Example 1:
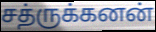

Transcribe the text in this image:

சத்ருக்கனன்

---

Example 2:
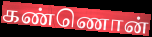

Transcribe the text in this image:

கண்ணொன்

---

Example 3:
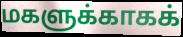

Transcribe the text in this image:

மகளுக்காகக்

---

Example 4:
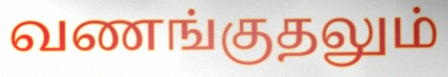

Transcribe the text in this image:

வணங்குதலும்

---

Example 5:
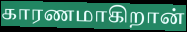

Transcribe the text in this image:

காரணமாகிறான்